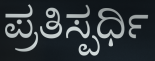
ಪ್ರತಿಸ್ಪರ್ಧಿ